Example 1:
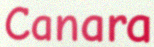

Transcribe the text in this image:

Canara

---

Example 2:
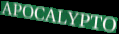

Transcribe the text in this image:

APOCALYPTO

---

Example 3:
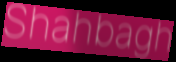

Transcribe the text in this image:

Shahbagh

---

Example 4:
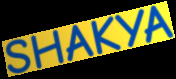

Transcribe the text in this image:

SHAKYA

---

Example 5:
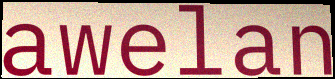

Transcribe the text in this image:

awelan